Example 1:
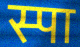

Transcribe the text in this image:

स्पा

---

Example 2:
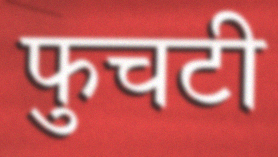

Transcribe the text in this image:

फुचटी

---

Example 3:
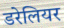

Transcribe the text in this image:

डरेलियर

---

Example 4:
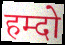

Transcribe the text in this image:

हम्दो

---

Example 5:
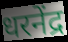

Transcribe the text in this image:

धरनेंद्र